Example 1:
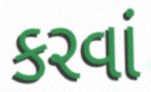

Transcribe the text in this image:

કરવાં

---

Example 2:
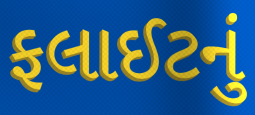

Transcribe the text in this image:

ફલાઈટનું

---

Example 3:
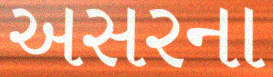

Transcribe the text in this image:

અસરના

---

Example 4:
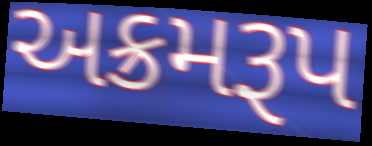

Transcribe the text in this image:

અક્રમરૂપ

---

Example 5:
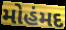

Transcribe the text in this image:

મોહંમદ